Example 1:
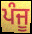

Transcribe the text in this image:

ਪੰਜੂ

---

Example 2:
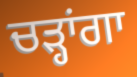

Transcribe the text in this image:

ਚੜ੍ਹਾਂਗਾ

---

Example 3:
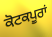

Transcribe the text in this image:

ਕੋਟਕਪੂਰਾਂ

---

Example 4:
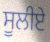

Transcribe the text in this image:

ਸੂਲੀਏ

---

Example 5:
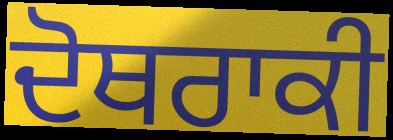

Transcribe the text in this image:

ਦੋਥਰਾਕੀ